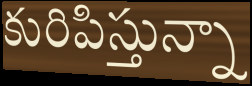
కురిపిస్తున్నా